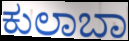
ಕುಲಾಬಾ